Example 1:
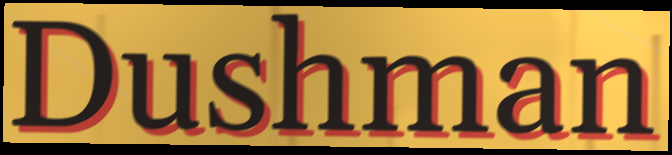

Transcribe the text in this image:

Dushman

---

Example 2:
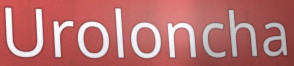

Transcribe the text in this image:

Uroloncha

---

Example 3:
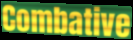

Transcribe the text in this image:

Combative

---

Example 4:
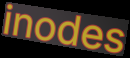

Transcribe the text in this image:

inodes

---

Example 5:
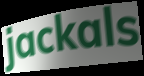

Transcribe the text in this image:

jackals